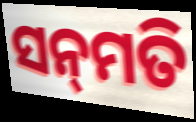
ସନ୍‌ମତି